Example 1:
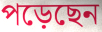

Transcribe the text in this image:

পড়েছেন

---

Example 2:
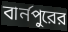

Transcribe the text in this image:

বার্নপুরের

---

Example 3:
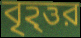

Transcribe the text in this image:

বৃহ্ত্তর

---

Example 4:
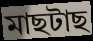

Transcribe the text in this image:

মাছটাছ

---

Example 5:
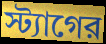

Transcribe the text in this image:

স্ট্যাগের